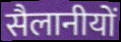
सैलानीयों